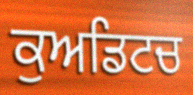
ਕੁਅਡਿਟਚ